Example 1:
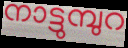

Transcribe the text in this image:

നാട്ടുമ്പുറ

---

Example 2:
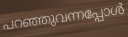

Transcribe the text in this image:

പറഞ്ഞുവന്നപ്പോൾ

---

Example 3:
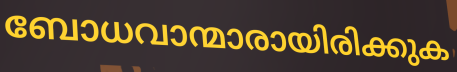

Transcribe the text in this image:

ബോധവാന്മാരായിരിക്കുക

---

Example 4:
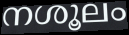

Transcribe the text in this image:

നശൂലം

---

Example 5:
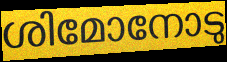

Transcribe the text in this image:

ശിമോനോടു